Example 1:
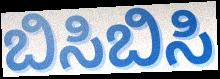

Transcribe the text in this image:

ಬಿಸಿಬಿಸಿ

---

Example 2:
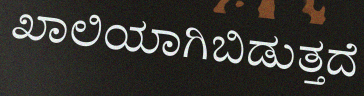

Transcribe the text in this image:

ಖಾಲಿಯಾಗಿಬಿಡುತ್ತದೆ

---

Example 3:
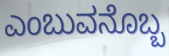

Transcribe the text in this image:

ಎಂಬುವನೊಬ್ಬ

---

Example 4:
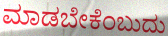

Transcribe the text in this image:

ಮಾಡಬೇಕೆಂಬುದು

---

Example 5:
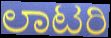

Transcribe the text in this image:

ಲಾಟರಿ